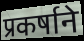
प्रकर्षाने